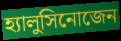
হ্যালুসিনোজেন